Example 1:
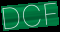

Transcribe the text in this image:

DCF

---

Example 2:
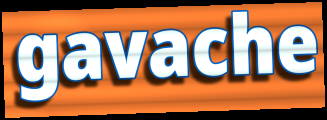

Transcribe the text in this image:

gavache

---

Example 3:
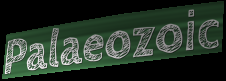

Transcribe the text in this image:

Palaeozoic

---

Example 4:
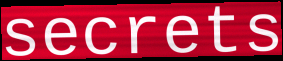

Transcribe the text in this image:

secrets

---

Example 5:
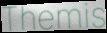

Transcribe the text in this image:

Themis